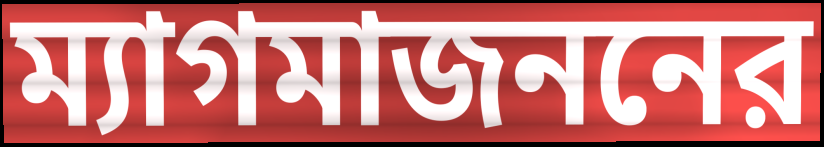
ম্যাগমাজননের